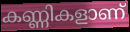
കണ്ണികളാണ്